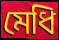
মেধি